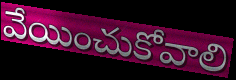
వేయించుకోవాలి